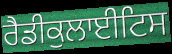
ਰੈਡੀਕੁਲਾਈਟਿਸ